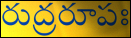
రుద్రరూపః